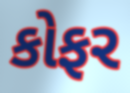
કોફર